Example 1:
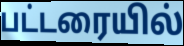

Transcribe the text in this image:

பட்டரையில்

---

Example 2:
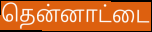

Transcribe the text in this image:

தென்னாட்டை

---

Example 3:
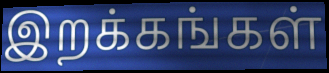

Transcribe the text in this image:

இறக்கங்கள்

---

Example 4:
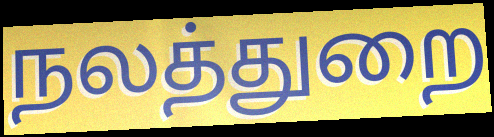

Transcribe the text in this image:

நலத்துறை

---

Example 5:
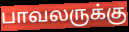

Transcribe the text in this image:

பாவலருக்கு